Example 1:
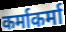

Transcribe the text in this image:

कर्माकर्मा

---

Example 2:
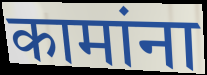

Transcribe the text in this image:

कामांना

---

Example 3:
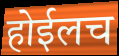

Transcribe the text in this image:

होईलच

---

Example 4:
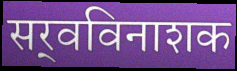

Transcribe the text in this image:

सर्वविनाशक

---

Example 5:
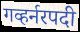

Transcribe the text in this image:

गव्हर्नरपदी